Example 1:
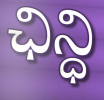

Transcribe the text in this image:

ఛిన్ధి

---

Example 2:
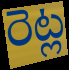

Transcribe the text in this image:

రెట్ల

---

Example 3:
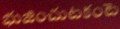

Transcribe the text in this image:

భుజించుటకంటె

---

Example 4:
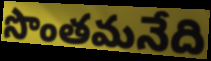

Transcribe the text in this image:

సొంతమనేది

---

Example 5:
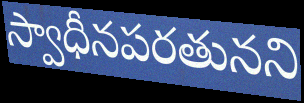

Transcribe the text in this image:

స్వాధీనపరతునని